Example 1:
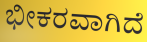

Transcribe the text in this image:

ಭೀಕರವಾಗಿದೆ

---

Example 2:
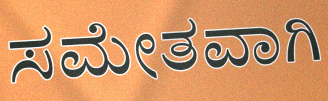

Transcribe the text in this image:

ಸಮೇತವಾಗಿ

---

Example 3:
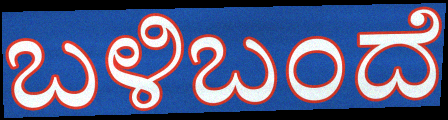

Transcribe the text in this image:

ಬಳಿಬಂದೆ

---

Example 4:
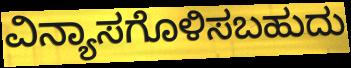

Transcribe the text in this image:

ವಿನ್ಯಾಸಗೊಳಿಸಬಹುದು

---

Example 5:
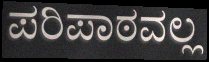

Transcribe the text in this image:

ಪರಿಪಾಠವಲ್ಲ